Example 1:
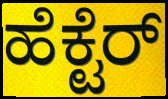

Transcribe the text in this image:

ಹೆಕ್ಟೆರ್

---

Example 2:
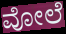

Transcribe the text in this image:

ವೋಲೆ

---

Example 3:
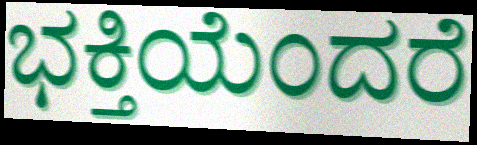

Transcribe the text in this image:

ಭಕ್ತಿಯೆಂದರೆ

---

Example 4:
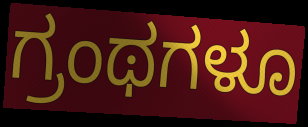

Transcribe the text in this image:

ಗ್ರಂಥಗಳೂ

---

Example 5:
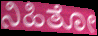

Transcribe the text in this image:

ನಿಹಿತೋ